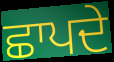
ਛਾਪਦੇ